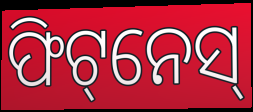
ଫିଟ୍‌ନେସ୍